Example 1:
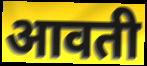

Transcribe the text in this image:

आवती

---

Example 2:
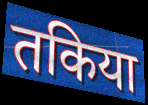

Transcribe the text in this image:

तकिया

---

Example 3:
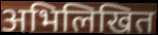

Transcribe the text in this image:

अभिलिखित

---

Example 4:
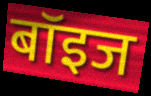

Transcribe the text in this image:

बॉइज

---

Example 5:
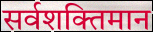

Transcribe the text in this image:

सर्वशक्‍तिमान